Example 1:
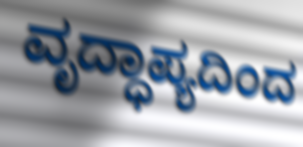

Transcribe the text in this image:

ವೃದ್ಧಾಪ್ಯದಿಂದ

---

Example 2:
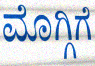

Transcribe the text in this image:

ಮೊಗ್ಗಿಗೆ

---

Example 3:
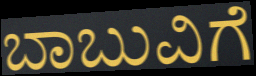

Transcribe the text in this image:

ಬಾಬುವಿಗೆ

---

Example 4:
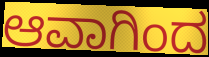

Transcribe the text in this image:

ಆವಾಗಿಂದ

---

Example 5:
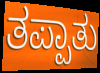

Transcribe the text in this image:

ತಪ್ಪಾತು